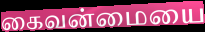
கைவன்மையை